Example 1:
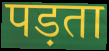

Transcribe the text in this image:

पड़ता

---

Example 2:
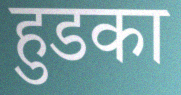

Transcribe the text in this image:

हुडका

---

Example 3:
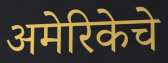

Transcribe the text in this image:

अमेरिकेचे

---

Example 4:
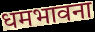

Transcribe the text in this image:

धमभावना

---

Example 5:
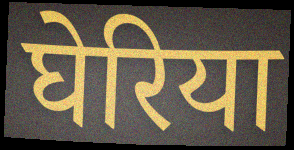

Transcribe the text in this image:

घेरिया